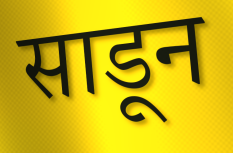
साडून